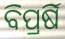
ବିପ୍ରର୍ଷି